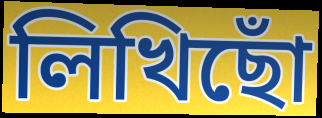
লিখিছোঁ